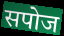
सपोज